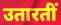
उतारतीं